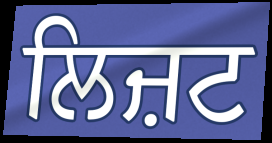
ਲਿਜ਼ਟ